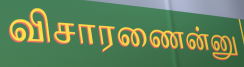
விசாரணைன்னு